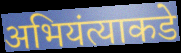
अभियंत्याकडे